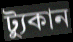
ট্যুকান